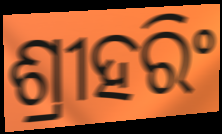
ଶ୍ରୀହରିଂ